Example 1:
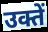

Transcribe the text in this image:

उक्तें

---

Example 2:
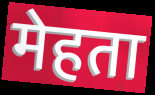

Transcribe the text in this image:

मेहता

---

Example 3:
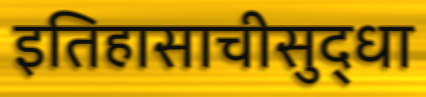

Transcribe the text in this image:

इतिहासाचीसुद्धा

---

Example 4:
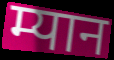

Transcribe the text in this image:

म्यान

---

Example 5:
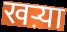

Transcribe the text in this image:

खऱ्‍या